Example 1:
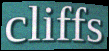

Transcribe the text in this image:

cliffs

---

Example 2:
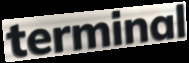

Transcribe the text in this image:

terminal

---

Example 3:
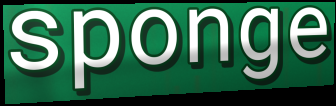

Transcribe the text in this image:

sponge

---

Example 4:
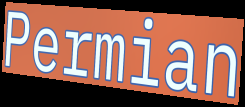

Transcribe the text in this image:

Permian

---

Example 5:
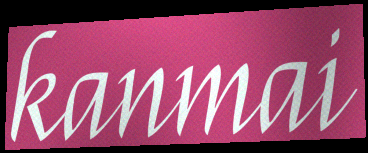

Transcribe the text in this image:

kanmai